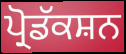
ਪ੍ਰੋਡੱਕਸ਼ਨ